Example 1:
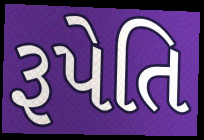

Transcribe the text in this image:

રૂપેતિ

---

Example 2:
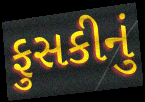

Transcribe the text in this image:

ફુસકીનું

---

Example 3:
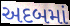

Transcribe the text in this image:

અદબમાં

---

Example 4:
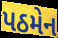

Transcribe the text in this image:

પઠમેન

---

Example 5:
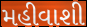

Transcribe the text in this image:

મહીવાશી